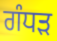
ਗੰਧੜ